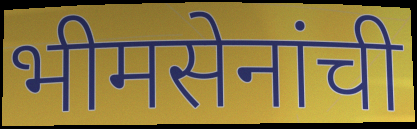
भीमसेनांची